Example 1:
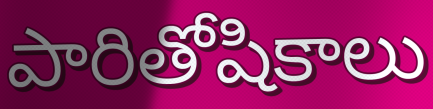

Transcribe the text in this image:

పారితోషికాలు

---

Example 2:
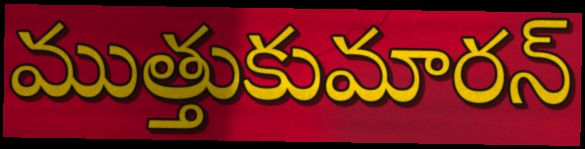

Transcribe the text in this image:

ముత్తుకుమారన్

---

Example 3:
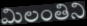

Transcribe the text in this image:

మిలంతిని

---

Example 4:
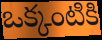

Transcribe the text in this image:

ఒక్కంటికి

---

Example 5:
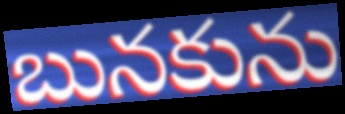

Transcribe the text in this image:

బునకును